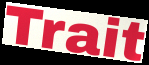
Trait